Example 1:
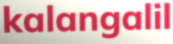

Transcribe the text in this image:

kalangalil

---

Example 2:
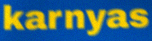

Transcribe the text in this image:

karnyas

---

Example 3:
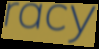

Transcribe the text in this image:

racy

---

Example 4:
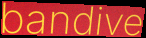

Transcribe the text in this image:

bandive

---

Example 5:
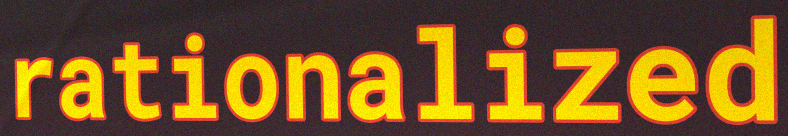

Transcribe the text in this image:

rationalized